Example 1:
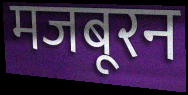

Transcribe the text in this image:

मजबूरन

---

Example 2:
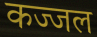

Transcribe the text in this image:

कज्जल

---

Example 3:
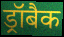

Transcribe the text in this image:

ड्रॉबैक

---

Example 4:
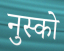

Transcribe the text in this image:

नुस्को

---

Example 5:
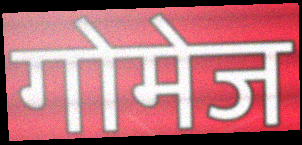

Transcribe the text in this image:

गोमेज